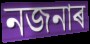
নজনাৰ